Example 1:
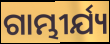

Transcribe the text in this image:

ଗାମ୍ଭୀର୍ଯ୍ୟ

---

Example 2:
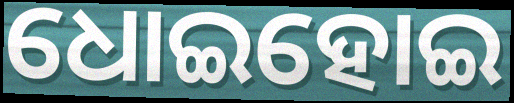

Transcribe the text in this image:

ଧୋଇହୋଇ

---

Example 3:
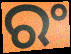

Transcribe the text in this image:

ରଂ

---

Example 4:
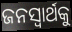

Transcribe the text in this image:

ଜନସ୍ବାର୍ଥକୁ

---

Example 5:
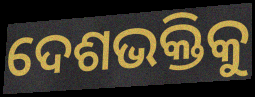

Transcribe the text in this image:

ଦେଶଭକ୍ତିକୁ